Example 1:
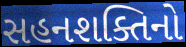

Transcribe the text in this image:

સહનશક્તિનો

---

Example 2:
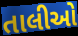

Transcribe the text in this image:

તાલીઓ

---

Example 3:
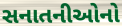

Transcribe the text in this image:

સનાતનીઓનો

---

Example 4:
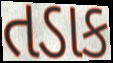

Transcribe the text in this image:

તડાક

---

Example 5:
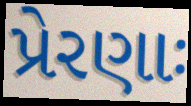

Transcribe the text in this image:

પ્રેરણાઃ